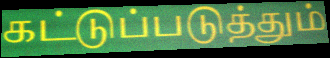
கட்டுப்படுத்தும்